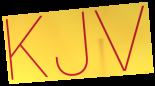
KJV